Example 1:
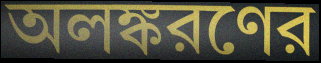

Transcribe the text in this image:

অলঙ্করণের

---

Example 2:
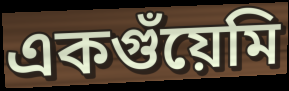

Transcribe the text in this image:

একগুঁয়েমি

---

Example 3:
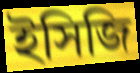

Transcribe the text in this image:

ইসিজি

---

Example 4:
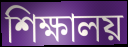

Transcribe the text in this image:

শিক্ষালয়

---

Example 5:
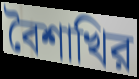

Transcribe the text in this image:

বৈশাখির